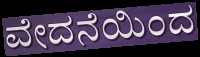
ವೇದನೆಯಿಂದ